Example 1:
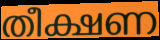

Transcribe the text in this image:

തീക്ഷണ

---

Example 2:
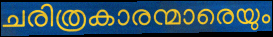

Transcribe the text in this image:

ചരിത്രകാരന്മാരെയും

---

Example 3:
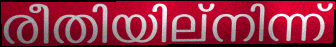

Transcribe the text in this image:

രീതിയില്നിന്ന്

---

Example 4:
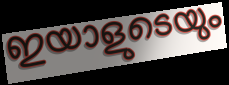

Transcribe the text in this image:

ഇയാളുടെയും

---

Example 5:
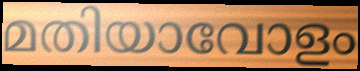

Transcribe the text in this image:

മതിയാവോളം